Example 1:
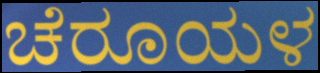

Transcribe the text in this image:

ಚೆರೂಯಳ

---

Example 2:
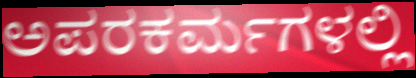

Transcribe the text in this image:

ಅಪರಕರ್ಮಗಳಲ್ಲಿ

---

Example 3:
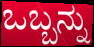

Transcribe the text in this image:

ಒಬ್ಬನ್ನು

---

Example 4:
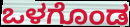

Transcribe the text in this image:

ಒಳಗೊಂಡ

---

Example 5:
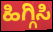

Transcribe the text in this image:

ಹಿಗ್ಗಿಸಿ